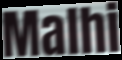
Malhi